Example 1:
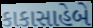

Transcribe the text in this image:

કાકાસાહેબે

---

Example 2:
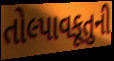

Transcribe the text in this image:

તોલ્પાવકૂતુની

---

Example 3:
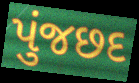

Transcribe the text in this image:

પુંજછદ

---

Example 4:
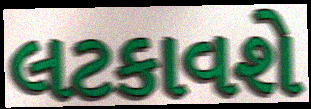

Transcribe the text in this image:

લટકાવશે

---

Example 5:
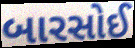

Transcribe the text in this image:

બારસોઈ